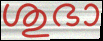
ശുഭാ